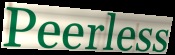
Peerless